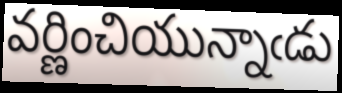
వర్ణించియున్నాఁడు